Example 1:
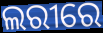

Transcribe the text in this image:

ଲରୀରେ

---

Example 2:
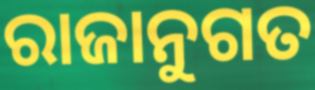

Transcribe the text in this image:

ରାଜାନୁଗତ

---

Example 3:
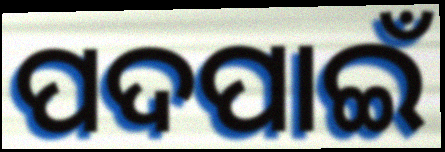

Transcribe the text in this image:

ପଦପାଇଁ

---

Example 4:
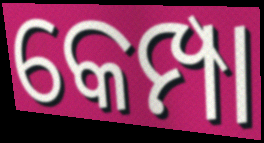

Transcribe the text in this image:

କେମ୍ପା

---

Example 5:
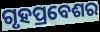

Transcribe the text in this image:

ଗୃହପ୍ରବେଶର